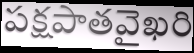
పక్షపాతవైఖరి